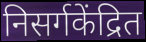
निसर्गकेंद्रित